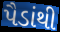
પૈડાંથી